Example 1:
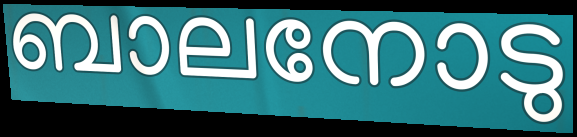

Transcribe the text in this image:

ബാലനോടു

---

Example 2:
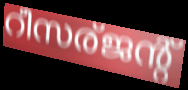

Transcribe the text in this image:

റീസര്ജന്റ്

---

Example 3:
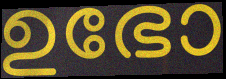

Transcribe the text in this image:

ഉഭോ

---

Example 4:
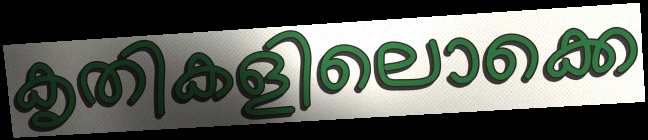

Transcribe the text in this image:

കൃതികളിലൊക്കെ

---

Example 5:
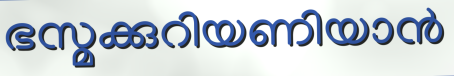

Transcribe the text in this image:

ഭസ്മക്കുറിയണിയാൻ